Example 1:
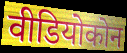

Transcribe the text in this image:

वीडियोकोन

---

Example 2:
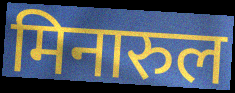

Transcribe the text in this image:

मिनारुल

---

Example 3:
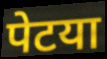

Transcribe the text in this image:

पेटया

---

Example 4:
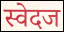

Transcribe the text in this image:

स्वेदज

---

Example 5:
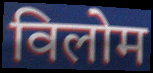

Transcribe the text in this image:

विलोम